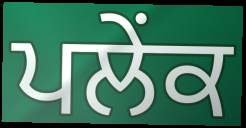
ਪਲੇਂਕ